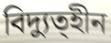
বিদ্যুত্হীন